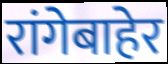
रांगेबाहेर